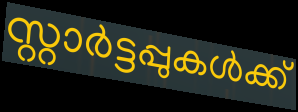
സ്റ്റാർട്ടപ്പുകൾക്ക്